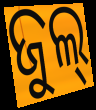
ଜୁଲ୍